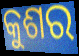
କୁଶର